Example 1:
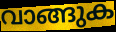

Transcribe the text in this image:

വാങ്ങുക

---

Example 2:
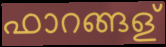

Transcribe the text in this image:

ഫാറങ്ങള്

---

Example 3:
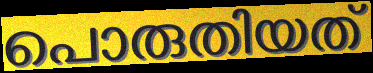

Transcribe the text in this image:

പൊരുതിയത്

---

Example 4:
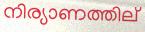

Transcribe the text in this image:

നിര്യാണത്തില്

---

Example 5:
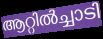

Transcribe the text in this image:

ആറ്റിൽച്ചാടി